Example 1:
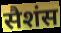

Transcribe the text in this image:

सैशंस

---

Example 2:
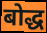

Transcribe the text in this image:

बोद्ध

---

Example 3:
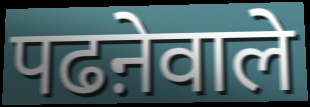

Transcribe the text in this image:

पढऩेवाले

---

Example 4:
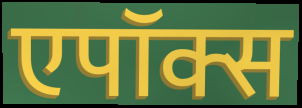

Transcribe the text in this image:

एपॉक्स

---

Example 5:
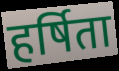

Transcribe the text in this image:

हर्षिता